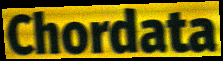
Chordata